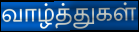
வாழ்த்துகள்